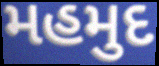
મહમુદ